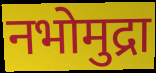
नभोमुद्रा